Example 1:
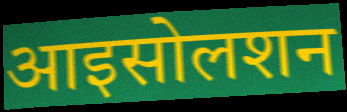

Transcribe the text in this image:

आइसोलशन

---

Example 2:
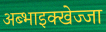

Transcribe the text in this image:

अब्भाइक्खेज्जा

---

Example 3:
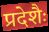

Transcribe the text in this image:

प्रदेशैः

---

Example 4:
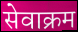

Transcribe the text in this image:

सेवाक्रम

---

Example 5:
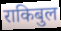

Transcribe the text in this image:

राकिबुल